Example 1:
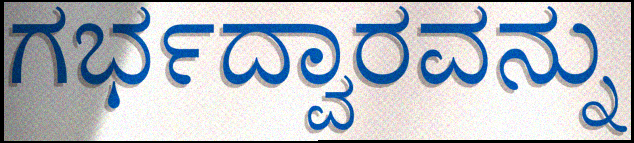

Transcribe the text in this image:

ಗರ್ಭದ್ವಾರವನ್ನು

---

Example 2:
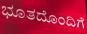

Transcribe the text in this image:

ಭೂತದೊಂದಿಗೆ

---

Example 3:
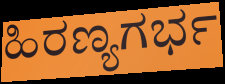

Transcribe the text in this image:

ಹಿರಣ್ಯಗರ್ಭ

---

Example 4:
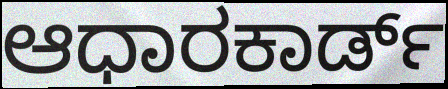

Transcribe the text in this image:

ಆಧಾರಕಾರ್ಡ್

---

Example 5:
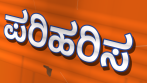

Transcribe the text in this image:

ಪರಿಹರಿಸ